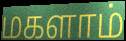
மகளாம்